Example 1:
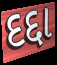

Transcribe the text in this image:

દદ્દા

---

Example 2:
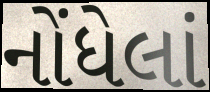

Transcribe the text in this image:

નોંધેલાં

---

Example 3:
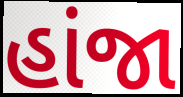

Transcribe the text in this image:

હાંજા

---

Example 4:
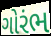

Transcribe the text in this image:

ગોરંભ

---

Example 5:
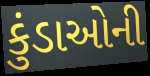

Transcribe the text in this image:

કુંડાઓની